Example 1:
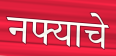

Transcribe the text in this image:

नफ्याचे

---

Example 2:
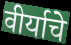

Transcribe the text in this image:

वीर्याचे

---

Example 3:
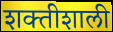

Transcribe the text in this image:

शक्तीशाली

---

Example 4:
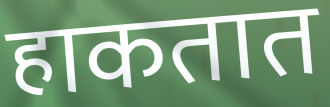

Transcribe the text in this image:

हाकतात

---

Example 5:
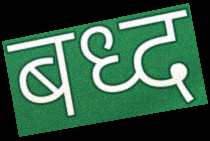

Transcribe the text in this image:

बध्द